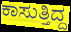
ಕಾಸುತ್ತಿದ್ದ